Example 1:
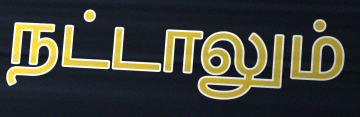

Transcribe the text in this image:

நட்டாலும்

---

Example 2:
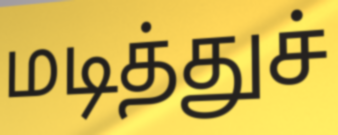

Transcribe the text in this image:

மடித்துச்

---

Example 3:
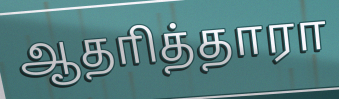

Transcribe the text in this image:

ஆதரித்தாரா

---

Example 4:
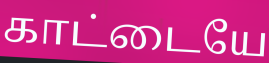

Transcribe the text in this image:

காட்டையே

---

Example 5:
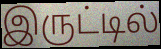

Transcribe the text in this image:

இருட்டில்